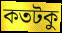
কতটকু